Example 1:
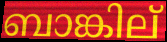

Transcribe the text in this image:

ബാങ്കില്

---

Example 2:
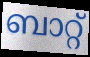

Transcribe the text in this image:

ബാറ്റ്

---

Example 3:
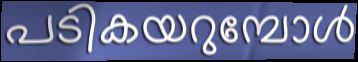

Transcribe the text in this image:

പടികയറുമ്പോൾ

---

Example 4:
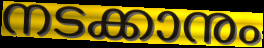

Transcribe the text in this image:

നടക്കാനും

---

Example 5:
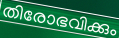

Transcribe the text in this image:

തിരോഭവിക്കും